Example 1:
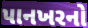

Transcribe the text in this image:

પાનખરનો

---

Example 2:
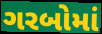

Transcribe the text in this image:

ગરબોમાં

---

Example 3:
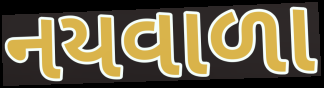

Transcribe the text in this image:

નયવાળા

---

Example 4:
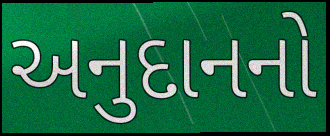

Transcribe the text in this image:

અનુદાનનો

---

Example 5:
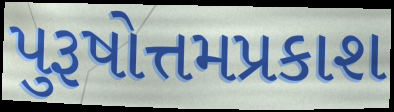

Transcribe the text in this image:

પુરૂષોત્તમપ્રકાશ